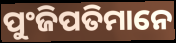
ପୁଂଜିପତିମାନେ